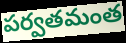
పర్వతమంత